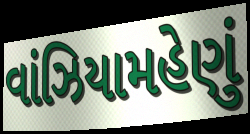
વાંઝિયામહેણું